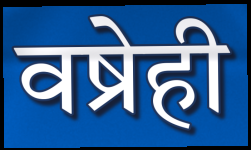
वष्रेही